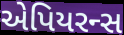
એપિયરન્સ